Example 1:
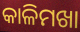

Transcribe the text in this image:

କାଳିମଖା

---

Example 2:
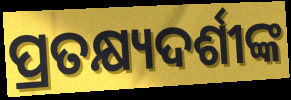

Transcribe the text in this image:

ପ୍ରତକ୍ଷ୍ୟଦର୍ଶୀଙ୍କ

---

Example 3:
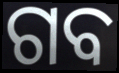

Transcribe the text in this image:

ଗବ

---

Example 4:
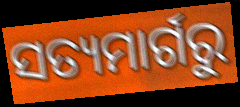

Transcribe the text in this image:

ସତ୍ୟମାର୍ଗରୁ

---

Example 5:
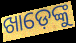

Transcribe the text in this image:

ଖାଡ଼େଙ୍କୁ